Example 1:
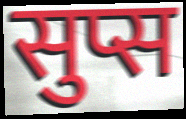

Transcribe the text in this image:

सुप्स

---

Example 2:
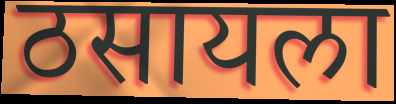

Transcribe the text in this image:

ठसायला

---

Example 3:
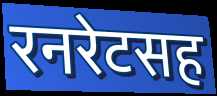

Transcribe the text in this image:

रनरेटसह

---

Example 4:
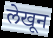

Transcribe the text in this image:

लेखून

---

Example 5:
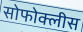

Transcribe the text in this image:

सोफोक्लीस